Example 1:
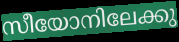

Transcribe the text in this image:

സീയോനിലേക്കു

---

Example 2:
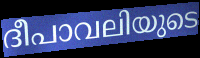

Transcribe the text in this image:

ദീപാവലിയുടെ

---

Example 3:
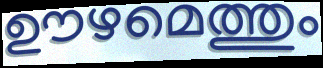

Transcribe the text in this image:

ഊഴമെത്തും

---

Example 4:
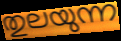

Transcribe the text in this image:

തുലയുന്ന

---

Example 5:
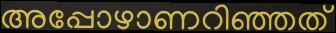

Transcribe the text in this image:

അപ്പോഴാണറിഞ്ഞത്